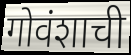
गोवंशाची